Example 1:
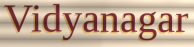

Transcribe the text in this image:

Vidyanagar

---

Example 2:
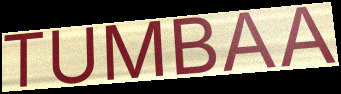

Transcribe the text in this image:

TUMBAA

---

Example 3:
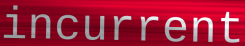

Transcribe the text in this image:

incurrent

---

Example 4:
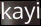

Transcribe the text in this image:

kayi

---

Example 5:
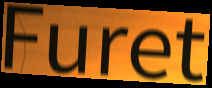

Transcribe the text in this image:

Furet